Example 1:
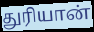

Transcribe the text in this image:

துரியான்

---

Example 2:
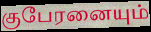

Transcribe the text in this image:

குபேரனையும்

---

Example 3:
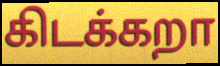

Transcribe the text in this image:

கிடக்கறா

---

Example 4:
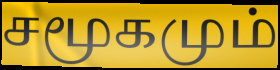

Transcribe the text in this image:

சமூகமும்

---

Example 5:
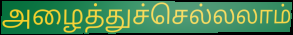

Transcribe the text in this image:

அழைத்துச்செல்லலாம்